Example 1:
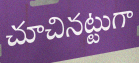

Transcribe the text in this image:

చూచినట్టుగా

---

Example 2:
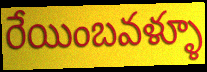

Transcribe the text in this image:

రేయింబవళ్ళూ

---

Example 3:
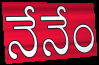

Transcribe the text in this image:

నేనేం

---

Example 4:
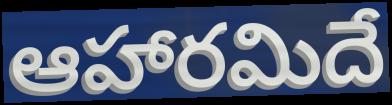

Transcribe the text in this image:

ఆహారమిదే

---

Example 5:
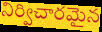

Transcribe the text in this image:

నిర్విచారమైన